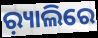
ର଼୍ୟାଲିରେ